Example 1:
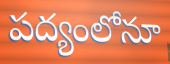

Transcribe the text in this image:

పద్యంలోనూ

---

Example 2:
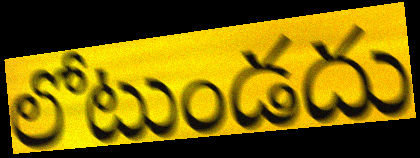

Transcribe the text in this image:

లోటుండదు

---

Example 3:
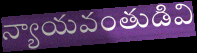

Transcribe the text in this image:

న్యాయవంతుడివి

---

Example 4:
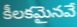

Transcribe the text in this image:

కీలకమైనవే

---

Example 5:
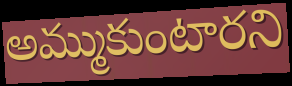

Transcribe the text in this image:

అమ్ముకుంటారని